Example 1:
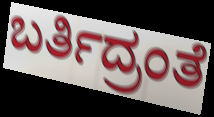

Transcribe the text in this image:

ಬರ್ತಿದ್ರಂತೆ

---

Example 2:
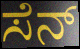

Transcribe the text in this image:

ಸೆನ್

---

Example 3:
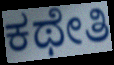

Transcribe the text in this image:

ಕಥೇತಿ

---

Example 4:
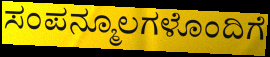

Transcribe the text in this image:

ಸಂಪನ್ಮೂಲಗಳೊಂದಿಗೆ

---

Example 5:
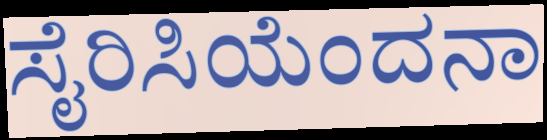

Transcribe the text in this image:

ಸೈರಿಸಿಯೆಂದನಾ